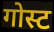
गोस्ट